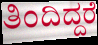
ತಿಂದಿದ್ದರೆ